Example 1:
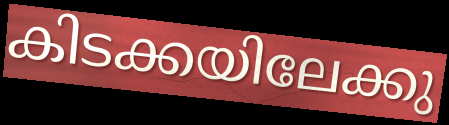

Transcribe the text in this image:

കിടക്കയിലേക്കു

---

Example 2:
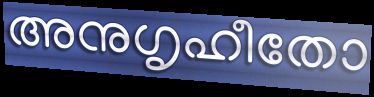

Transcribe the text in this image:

അനുഗൃഹീതോ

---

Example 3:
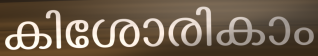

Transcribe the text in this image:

കിശോരികാം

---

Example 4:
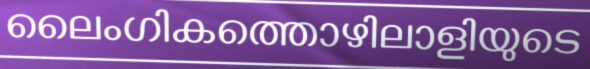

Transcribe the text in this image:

ലൈംഗികത്തൊഴിലാളിയുടെ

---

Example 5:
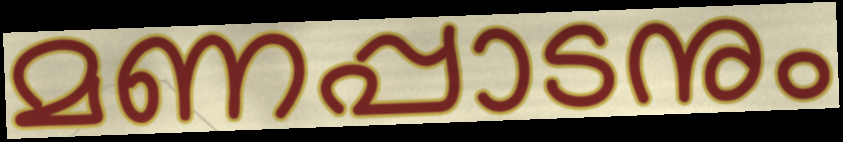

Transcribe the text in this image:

മണപ്പാടനും